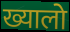
ख्यालो